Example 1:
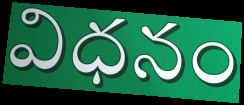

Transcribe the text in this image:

విధనం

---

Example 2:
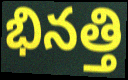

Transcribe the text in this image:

భినత్తి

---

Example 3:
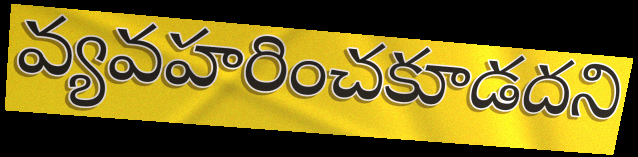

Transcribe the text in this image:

వ్యవహరించకూడదని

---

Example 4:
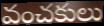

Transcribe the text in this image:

వంచకులు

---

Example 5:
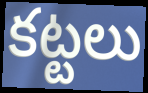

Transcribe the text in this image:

కట్టలు